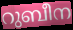
റുബീന